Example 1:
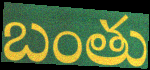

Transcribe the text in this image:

బంతు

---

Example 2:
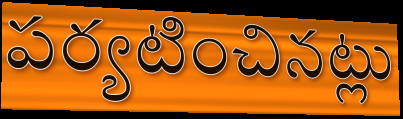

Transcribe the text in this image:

పర్యటించినట్లు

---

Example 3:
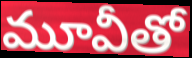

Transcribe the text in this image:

మూవీతో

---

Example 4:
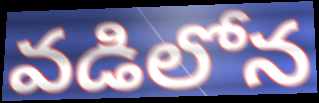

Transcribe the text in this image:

వడిలోన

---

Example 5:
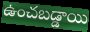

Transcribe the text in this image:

ఉంచబడ్డాయి